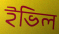
ইভিল